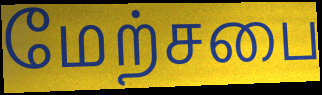
மேற்சபை